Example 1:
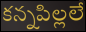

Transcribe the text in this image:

కన్నపిల్లలే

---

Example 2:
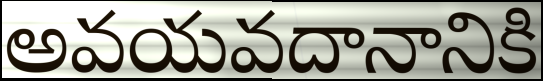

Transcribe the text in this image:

అవయవదానానికి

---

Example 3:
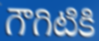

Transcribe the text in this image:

గౌగిటికి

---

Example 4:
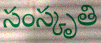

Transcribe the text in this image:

సంస్కృతి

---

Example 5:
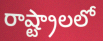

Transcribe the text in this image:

రాష్ట్రాలలో